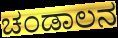
ಚಂಡಾಲನ